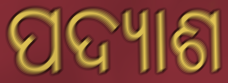
ପଦ୍ୟାଶ